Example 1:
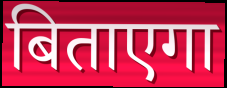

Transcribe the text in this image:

बिताएगा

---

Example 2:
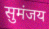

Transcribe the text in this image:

सुमंजय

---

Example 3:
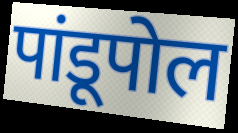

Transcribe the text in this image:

पांडूपोल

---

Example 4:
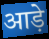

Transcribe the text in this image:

आड़े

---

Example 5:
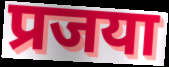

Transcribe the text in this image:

प्रजया